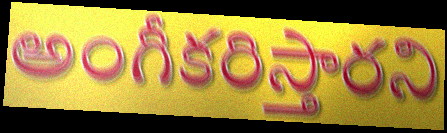
అంగీకరిస్తారని